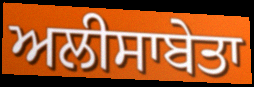
ਅਲੀਸਾਬੇਤਾ